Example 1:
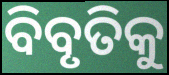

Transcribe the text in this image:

ବିବୃତିକୁ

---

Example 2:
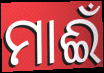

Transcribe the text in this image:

ମାଈଁ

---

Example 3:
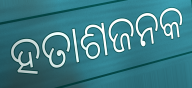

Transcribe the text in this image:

ହତାଶଜନକ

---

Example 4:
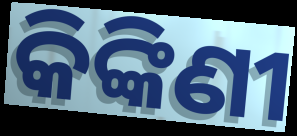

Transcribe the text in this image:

କିଙ୍କିଣୀ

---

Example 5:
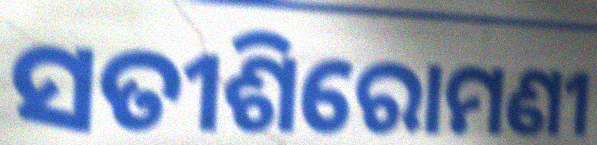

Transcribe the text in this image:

ସତୀଶିରୋମଣୀ